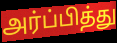
அர்ப்பித்து